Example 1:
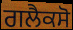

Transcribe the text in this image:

ਗਲੈਕਸੋ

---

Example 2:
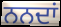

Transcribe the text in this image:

ਨਨਦਾਂ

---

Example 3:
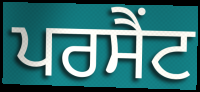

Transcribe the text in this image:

ਪਰਸੈਂਟ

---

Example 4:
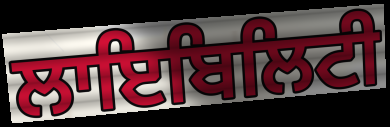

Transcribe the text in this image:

ਲਾਇਬਿਲਿਟੀ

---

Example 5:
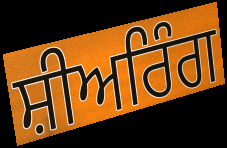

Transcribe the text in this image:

ਸ਼ੀਅਰਿੰਗ